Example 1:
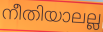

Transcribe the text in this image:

നീതിയാലല്ല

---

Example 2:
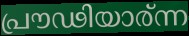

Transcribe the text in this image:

പ്രൗഢിയാര്ന്ന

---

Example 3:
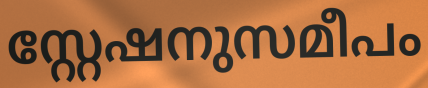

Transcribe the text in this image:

സ്റ്റേഷനുസമീപം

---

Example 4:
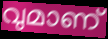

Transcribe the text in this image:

വുമാണ്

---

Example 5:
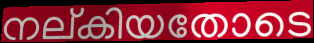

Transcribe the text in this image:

നല്കിയതോടെ